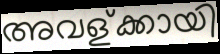
അവള്ക്കായി